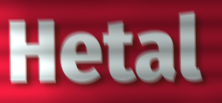
Hetal